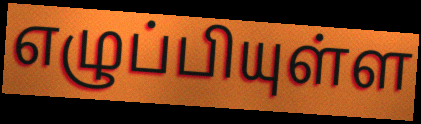
எழுப்பியுள்ள